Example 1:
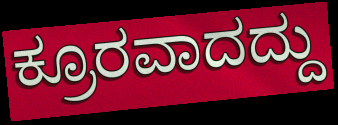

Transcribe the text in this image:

ಕ್ರೂರವಾದದ್ದು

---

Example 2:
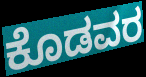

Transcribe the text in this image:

ಕೊಡವರ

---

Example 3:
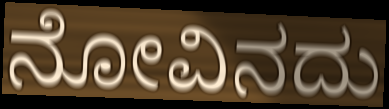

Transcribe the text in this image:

ನೋವಿನದು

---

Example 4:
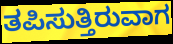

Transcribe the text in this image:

ತಪಿಸುತ್ತಿರುವಾಗ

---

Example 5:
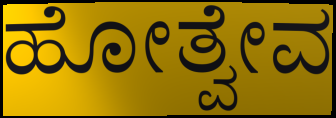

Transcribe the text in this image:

ಹೋತ್ವೇವ